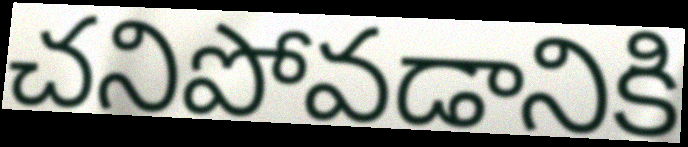
చనిపోవడానికి